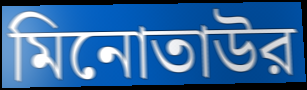
মিনোতাউর